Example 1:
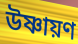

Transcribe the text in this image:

উষ্ণায়ণ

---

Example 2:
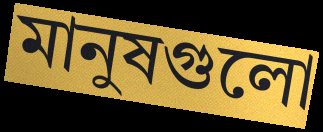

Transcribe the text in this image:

মানুষগুলো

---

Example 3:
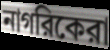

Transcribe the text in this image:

নাগরিকেরা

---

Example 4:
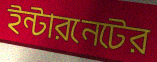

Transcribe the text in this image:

ইন্টারনেটের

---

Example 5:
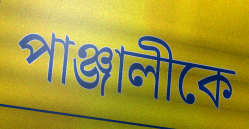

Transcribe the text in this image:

পাঞ্জালীকে